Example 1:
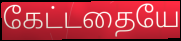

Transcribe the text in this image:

கேட்டதையே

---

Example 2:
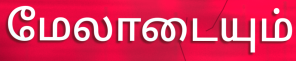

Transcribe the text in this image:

மேலாடையும்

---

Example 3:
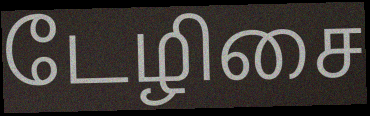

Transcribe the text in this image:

டேழிசை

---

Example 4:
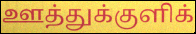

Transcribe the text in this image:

ஊத்துக்குளிக்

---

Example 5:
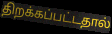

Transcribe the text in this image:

திறக்கப்பட்டதால்